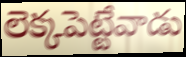
లెక్కపెట్టేవాడు